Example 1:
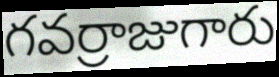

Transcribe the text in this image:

గవర్రాజుగారు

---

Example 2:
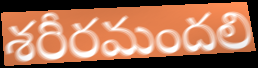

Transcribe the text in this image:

శరీరమందలి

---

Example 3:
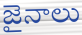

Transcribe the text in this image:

జైనాలు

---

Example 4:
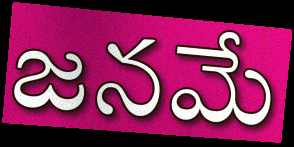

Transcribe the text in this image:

జనమే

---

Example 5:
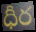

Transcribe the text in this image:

ధీర